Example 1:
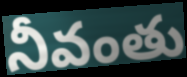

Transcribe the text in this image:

నీవంతు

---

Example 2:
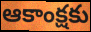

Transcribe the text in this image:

ఆకాంక్షకు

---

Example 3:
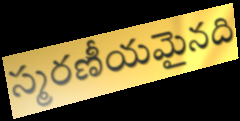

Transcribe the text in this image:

స్మరణీయమైనది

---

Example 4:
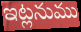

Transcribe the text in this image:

ఇట్లనుము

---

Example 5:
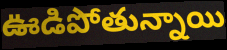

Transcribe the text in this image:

ఊడిపోతున్నాయి